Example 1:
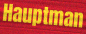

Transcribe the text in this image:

Hauptman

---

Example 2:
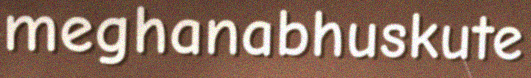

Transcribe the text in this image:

meghanabhuskute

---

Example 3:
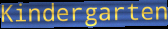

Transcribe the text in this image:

Kindergarten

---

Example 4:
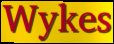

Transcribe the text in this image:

Wykes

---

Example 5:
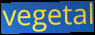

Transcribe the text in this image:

vegetal